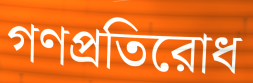
গণপ্রতিরোধ